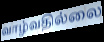
வாழ்வதில்லை